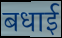
बधाई